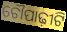
ଚୌପାଢ଼ୀଟି